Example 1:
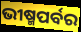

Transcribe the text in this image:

ଭୀଷ୍ମପର୍ବର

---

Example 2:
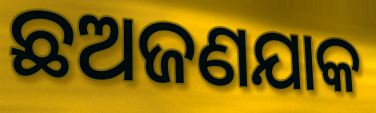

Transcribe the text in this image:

ଛଅଜଣଯାକ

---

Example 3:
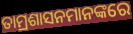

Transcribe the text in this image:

ତାମ୍ରଶାସନମାନଙ୍କରେ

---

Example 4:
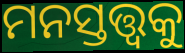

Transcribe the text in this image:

ମନସ୍ତତ୍ତ୍ୱକୁ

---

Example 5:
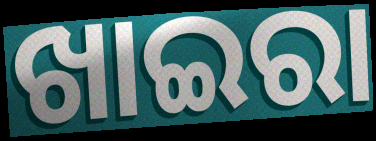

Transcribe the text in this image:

ଖାଇରା